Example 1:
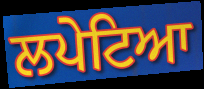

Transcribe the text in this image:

ਲਪੇਟਿਆ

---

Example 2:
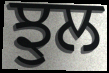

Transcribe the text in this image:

ਝੁਲ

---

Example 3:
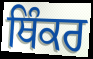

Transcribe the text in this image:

ਥਿੰਕਰ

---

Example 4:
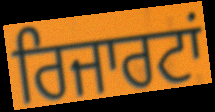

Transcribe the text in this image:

ਰਿਜਾਰਟਾਂ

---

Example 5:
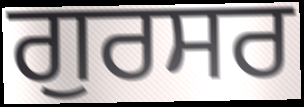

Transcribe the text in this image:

ਗੁਰਸਰ